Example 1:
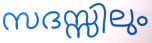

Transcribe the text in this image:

സദസ്സിലും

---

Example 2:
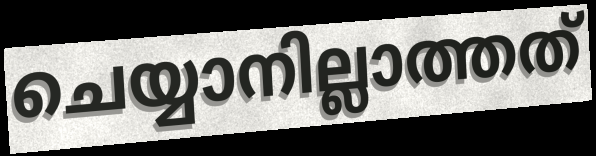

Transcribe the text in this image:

ചെയ്യാനില്ലാത്തത്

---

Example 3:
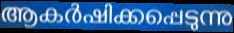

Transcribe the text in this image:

ആകർഷിക്കപ്പെടുന്നു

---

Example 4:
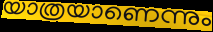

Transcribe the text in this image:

യാത്രയാണെന്നും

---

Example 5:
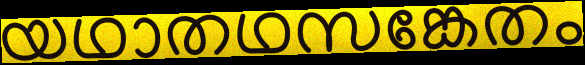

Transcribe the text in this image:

യഥാതഥസങ്കേതം